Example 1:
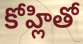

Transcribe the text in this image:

కోహ్లితో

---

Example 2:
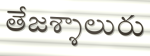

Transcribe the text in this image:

తేజశ్శాలురు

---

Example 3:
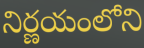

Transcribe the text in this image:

నిర్ణయంలోని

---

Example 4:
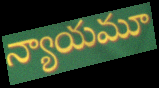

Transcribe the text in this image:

న్యాయమూ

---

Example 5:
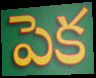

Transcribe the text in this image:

పెక